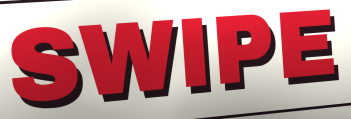
SWIPE